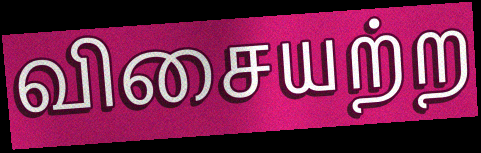
விசையற்ற